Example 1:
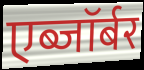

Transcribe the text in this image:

एब्जॉर्बर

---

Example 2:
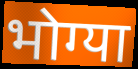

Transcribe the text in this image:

भोग्या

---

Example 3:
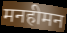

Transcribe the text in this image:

मनहीमन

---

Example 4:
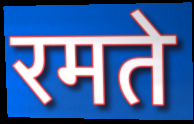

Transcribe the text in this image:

रमते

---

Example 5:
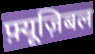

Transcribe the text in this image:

फ़्यूज़िबल